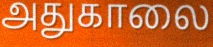
அதுகாலை